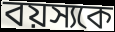
বয়স্যকে